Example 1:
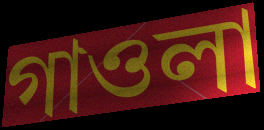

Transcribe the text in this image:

গাওলা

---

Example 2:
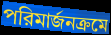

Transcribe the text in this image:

পরিমার্জনক্রমে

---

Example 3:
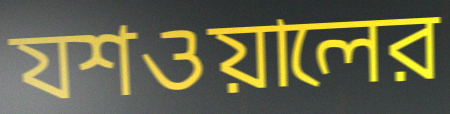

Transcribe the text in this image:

যশওয়ালের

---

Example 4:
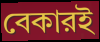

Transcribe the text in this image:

বেকারই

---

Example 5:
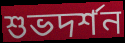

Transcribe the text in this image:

শুভদর্শন